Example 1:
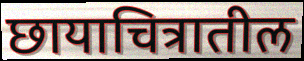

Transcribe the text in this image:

छायाचित्रातील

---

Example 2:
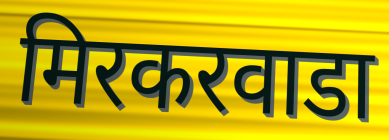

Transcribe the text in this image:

मिरकरवाडा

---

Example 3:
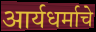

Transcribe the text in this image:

आर्यधर्माचे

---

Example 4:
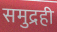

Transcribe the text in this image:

समुद्रही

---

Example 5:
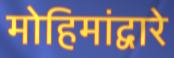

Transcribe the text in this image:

मोहिमांद्वारे